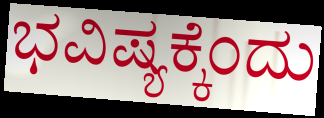
ಭವಿಷ್ಯಕ್ಕೆಂದು